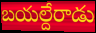
బయల్దేరాడు